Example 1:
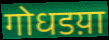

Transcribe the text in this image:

गोधडय़ा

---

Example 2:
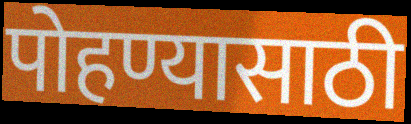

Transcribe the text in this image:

पोहण्यासाठी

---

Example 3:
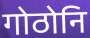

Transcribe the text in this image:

गोठोनि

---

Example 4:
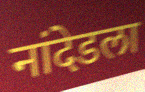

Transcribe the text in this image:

नांदेडला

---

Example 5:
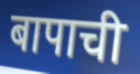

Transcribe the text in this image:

बापाची